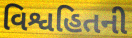
વિશ્વહિતની